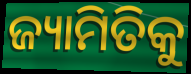
ଜ୍ୟାମିତିକୁ